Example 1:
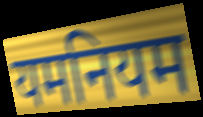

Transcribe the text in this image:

यमनियम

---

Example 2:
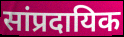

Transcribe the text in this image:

सांप्रदायिक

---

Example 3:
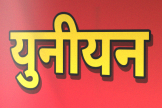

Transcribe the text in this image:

युनीयन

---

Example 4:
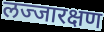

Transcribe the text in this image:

लज्जारक्षण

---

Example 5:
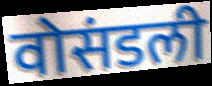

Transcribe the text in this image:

वोसंडली